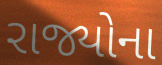
રાજ્યોના